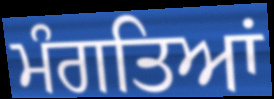
ਮੰਗਤਿਆਂ